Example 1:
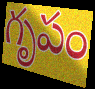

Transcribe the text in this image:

గృపం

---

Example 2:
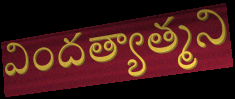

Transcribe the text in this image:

విందత్యాత్మని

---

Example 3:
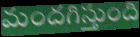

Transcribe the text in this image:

మందగిస్తుంది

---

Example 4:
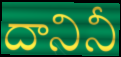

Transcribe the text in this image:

దానినీ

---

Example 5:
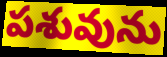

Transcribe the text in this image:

పశువును